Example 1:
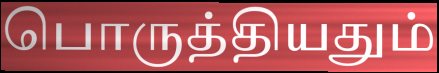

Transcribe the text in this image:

பொருத்தியதும்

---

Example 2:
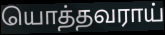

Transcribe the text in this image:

யொத்தவராய்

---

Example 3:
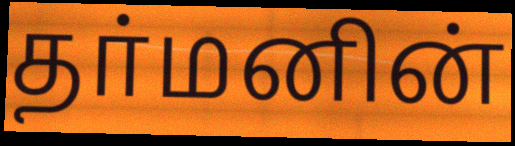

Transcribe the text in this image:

தர்மனின்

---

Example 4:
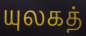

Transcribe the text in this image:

யுலகத்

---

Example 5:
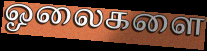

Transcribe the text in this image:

ஓலைகளை